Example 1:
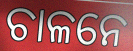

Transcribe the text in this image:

ଚାଳନେ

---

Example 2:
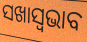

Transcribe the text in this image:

ସଖାସ୍ୱଭାବ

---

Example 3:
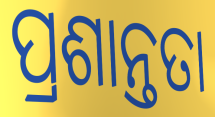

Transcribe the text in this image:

ପ୍ରଶାନ୍ତତା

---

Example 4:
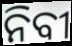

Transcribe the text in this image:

ନିବୀ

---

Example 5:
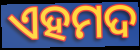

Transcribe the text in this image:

ଏହମଦ